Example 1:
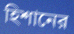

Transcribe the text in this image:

হিশানের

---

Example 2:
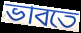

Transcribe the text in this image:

ভাবতে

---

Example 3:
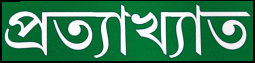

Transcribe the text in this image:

প্রত্যাখ্যাত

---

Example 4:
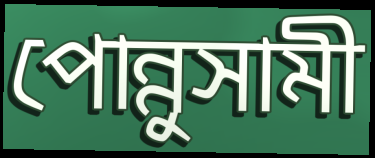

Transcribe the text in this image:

পোন্নুসামী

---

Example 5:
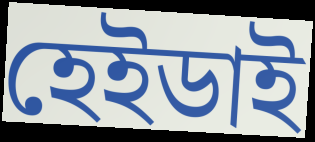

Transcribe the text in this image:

হেইডাই